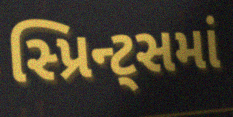
સ્પ્રિન્ટ્સમાં